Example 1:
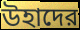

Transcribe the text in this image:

উহাদের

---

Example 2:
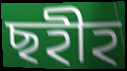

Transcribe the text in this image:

ছহীহ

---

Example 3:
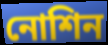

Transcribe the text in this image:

নোশিন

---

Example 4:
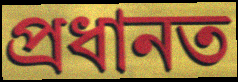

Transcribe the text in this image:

প্রধানত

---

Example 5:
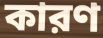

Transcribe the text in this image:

কারণ